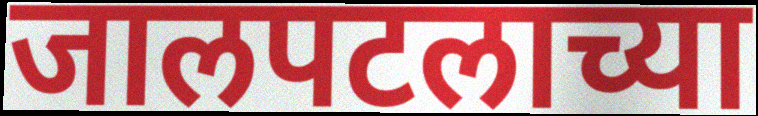
जालपटलाच्या